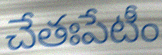
చేతఃపేటీం